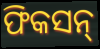
ଫିକସନ୍